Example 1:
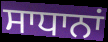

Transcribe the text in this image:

ਸਾਧਾਨਾਂ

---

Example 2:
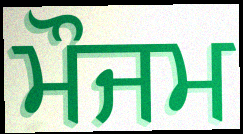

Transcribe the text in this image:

ਮੌਜਮ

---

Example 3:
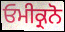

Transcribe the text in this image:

ਓਮੀਕ੍ਰਨੋ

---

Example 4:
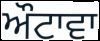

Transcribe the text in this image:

ਔਟਾਵਾ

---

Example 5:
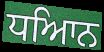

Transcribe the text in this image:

ਧਆਿਨ